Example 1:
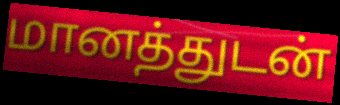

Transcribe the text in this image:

மானத்துடன்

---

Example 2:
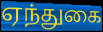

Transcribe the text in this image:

ஏந்துகை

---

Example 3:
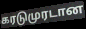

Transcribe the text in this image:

கரடுமுரடான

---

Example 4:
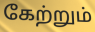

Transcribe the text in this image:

கேற்றும்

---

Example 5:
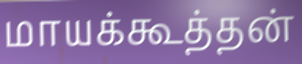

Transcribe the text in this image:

மாயக்கூத்தன்